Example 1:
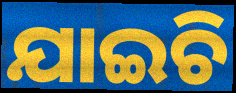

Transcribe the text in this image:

ଯାଇଚି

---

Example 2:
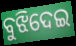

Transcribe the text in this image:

ବୁଝିଦେଇ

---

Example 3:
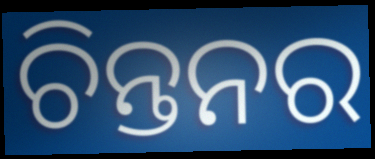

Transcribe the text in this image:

ଚିନ୍ତନର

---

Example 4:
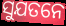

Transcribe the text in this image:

ସୁଯତନେ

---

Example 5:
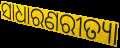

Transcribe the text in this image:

ସାଧାରଣରୀତ୍ୟା